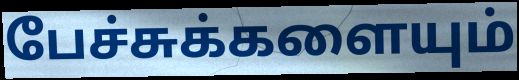
பேச்சுக்களையும்